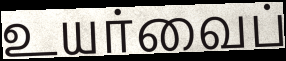
உயர்வைப்